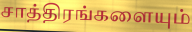
சாத்திரங்களையும்